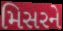
મિસરને